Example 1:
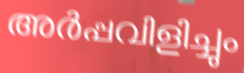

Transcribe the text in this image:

അർപ്പവിളിച്ചും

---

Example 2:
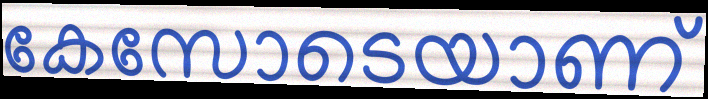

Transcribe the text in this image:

കേസോടെയാണ്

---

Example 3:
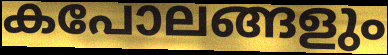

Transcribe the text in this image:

കപോലങ്ങളും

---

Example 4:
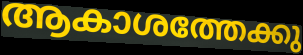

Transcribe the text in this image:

ആകാശത്തേക്കു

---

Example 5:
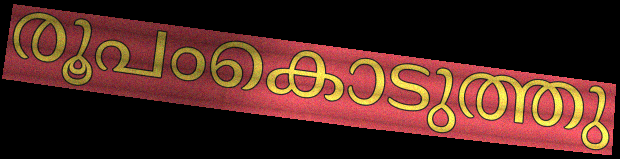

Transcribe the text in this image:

രൂപംകൊടുത്തു